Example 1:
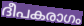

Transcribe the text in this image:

ദീപകരാഗം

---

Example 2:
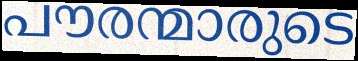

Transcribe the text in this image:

പൗരന്മാരുടെ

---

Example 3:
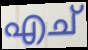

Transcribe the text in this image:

എച്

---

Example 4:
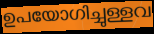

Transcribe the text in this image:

ഉപയോഗിച്ചുള്ളവ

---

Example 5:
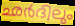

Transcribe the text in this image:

ഛർദിലും